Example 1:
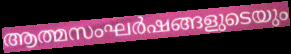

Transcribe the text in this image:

ആത്മസംഘർഷങ്ങളുടെയും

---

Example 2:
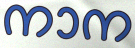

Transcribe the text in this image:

നാന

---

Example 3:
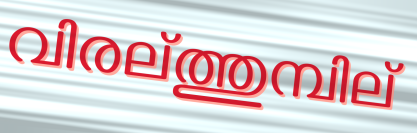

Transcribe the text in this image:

വിരല്ത്തുമ്പില്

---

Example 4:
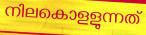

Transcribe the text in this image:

നിലകൊളളുന്നത്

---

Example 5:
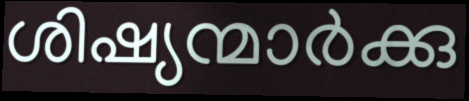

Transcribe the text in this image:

ശിഷ്യന്മാർക്കു